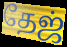
தேஜ்